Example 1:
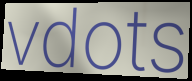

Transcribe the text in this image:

vdots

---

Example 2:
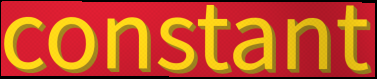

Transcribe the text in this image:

constant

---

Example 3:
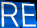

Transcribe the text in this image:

RE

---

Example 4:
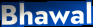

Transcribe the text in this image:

Bhawal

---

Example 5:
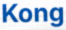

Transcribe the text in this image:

Kong